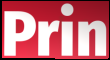
Prin